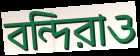
বন্দিরাও